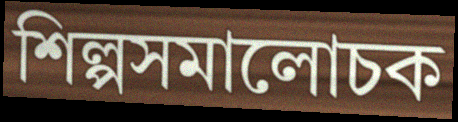
শিল্পসমালোচক